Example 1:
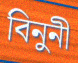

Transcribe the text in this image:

বিনুনী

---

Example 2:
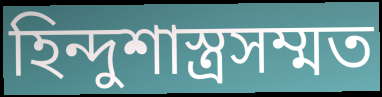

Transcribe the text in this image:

হিন্দুশাস্ত্রসম্মত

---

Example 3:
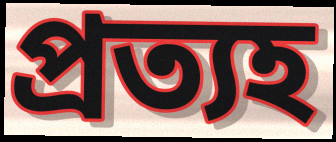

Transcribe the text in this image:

প্রত্যহ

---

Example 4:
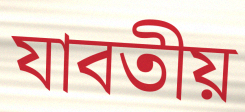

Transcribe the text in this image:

যাবতীয়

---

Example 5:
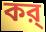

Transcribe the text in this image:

কর্